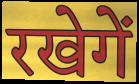
रखेगें